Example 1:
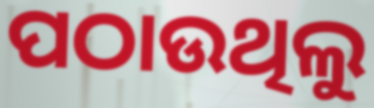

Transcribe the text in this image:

ପଠାଉଥିଲୁ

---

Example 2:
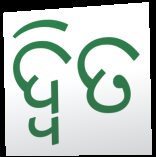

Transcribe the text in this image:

ଦ୍ୱିତ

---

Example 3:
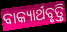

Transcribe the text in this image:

ବାକ୍ୟାର୍ଥବୃତ୍ତି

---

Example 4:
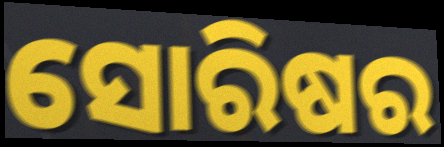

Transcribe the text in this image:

ସୋରିଷର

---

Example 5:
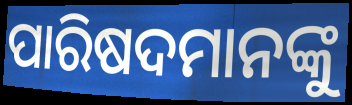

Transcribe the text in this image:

ପାରିଷଦମାନଙ୍କୁ